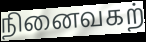
நினைவகற்